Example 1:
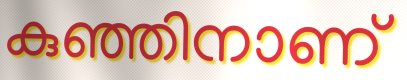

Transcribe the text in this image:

കുഞ്ഞിനാണ്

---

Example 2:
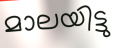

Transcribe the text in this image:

മാലയിട്ടു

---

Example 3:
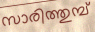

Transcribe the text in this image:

സാരിത്തുമ്പ്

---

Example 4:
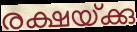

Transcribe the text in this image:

രക്ഷയ്‌ക്കു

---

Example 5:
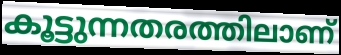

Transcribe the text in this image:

കൂട്ടുന്നതരത്തിലാണ്